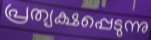
പ്രത്യക്ഷപ്പെടുന്നു